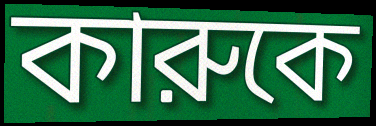
কারুকে